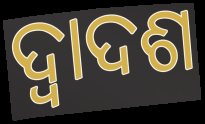
ଦ୍ୱାଦଶ